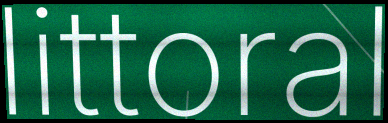
littoral